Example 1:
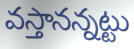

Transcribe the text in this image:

వస్తానన్నట్టు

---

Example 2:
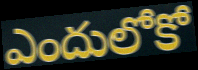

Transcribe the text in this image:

ఎందులోకో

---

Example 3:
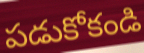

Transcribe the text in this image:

పడుకోకండి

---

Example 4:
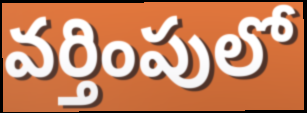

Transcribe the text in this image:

వర్తింపులో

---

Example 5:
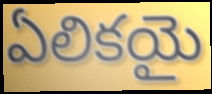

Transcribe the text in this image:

ఏలికయై